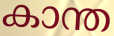
കാന്ത